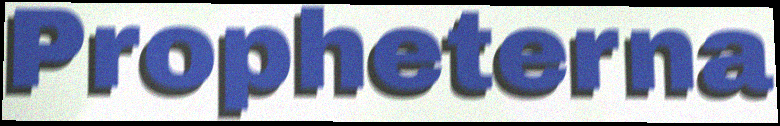
Propheterna